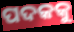
ପଦକକୁ